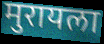
मुरायला